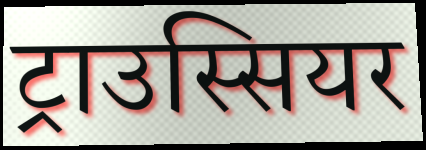
ट्राउस्सियर